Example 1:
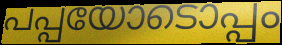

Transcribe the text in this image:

പപ്പയോടൊപ്പം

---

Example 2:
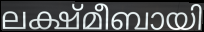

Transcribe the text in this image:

ലക്ഷ്മീബായി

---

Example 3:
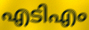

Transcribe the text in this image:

എടിഎം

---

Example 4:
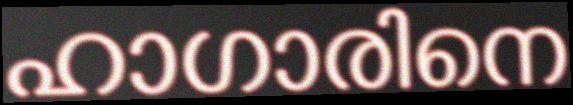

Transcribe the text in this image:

ഹാഗാരിനെ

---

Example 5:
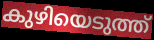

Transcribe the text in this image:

കുഴിയെടുത്ത്